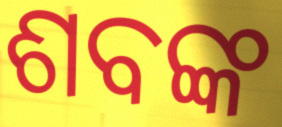
ଶବଙ୍କ